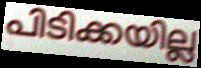
പിടിക്കയില്ല